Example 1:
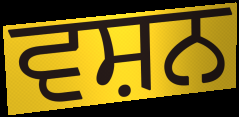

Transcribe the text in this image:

ਵਸ਼ਨ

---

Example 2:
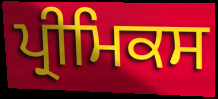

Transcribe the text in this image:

ਪ੍ਰੀਮਿਕਸ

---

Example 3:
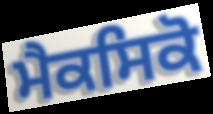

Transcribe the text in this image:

ਮੈਕਸਿਕੋ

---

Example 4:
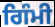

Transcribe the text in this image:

ਗਿੰਮੀ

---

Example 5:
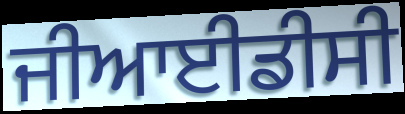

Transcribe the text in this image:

ਜੀਆਈਡੀਸੀ